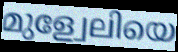
മുള്വേലിയെ